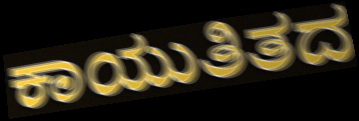
ಕಾಯುತಿತದ